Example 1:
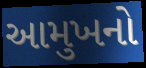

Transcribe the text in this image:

આમુખનો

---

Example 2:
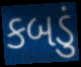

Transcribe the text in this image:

કબડું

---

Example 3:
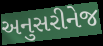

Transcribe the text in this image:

અનુસરીનેજ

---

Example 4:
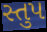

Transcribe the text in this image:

સ્તુપ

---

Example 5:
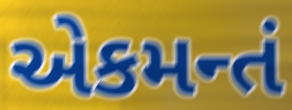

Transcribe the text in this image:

એકમન્તં